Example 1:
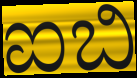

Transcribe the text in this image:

ಐಬಿ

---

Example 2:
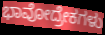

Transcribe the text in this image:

ಭಾವೋದ್ರೇಕಗಳು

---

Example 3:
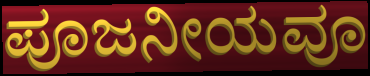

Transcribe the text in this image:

ಪೂಜನೀಯವೂ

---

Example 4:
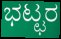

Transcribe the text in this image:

ಭಟ್ಟರ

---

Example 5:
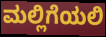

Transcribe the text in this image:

ಮಲ್ಲಿಗೆಯಲಿ